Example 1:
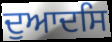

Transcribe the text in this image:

ਦੁਆਦਸਿ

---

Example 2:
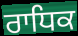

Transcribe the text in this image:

ਰਾਧਿਕ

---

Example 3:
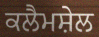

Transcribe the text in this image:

ਕਲੈਮਸ਼ੇਲ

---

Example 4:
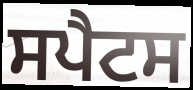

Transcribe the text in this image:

ਸਪੈਟਸ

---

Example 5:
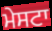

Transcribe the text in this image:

ਮੇਸਟਾ